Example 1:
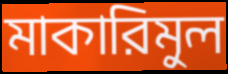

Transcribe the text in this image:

মাকারিমুল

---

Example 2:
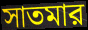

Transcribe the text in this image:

সাতমার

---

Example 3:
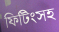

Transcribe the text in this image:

ফিটিংসহ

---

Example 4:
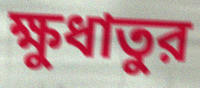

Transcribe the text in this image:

ক্ষুধাতুর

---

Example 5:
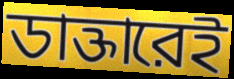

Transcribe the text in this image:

ডাক্তারেই